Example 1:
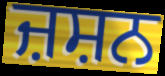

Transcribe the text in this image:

ਜ਼ਸ਼ਨ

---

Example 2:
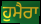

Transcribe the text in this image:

ਹੁਮੈਰਾ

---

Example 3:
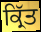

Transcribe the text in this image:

ਕ੍ਰਿੱਤ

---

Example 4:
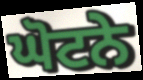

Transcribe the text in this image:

ਘੋਟਨੇ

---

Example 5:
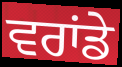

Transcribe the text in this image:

ਵਰਾਂਡੇ